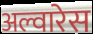
अल्वारेस